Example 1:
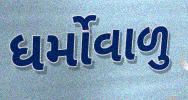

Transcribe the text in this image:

ધર્મોવાળુ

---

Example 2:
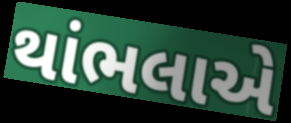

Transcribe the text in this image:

થાંભલાએ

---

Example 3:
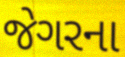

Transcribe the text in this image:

જેગરના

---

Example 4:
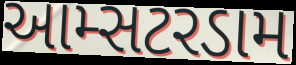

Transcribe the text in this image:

આમ્સટરડામ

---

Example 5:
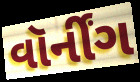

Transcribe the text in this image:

વૉર્નીંગ